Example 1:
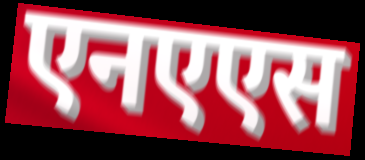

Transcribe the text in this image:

एनएएस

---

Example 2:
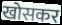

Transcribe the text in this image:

खोसकर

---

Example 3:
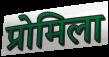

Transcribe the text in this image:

प्रोमिला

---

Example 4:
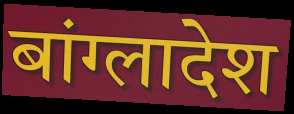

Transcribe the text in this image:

बांग्‍लादेश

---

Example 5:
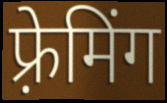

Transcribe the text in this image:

फ़्रेमिंग